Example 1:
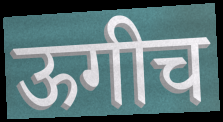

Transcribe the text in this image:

ऊगीच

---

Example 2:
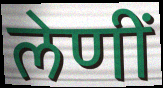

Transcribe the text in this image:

लेणीं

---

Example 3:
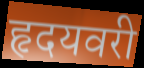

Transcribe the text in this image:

हृदयवरी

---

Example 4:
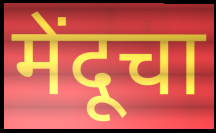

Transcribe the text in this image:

मेंदूचा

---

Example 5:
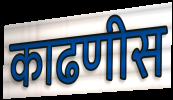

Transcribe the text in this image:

काढणीस